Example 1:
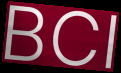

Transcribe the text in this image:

BCI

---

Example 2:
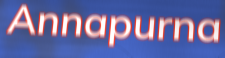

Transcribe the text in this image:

Annapurna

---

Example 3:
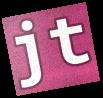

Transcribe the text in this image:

jt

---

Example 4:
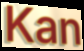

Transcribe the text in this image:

Kan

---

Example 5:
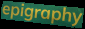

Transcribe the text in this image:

epigraphy